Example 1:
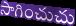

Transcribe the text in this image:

సాగించుచు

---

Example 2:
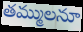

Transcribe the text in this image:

తమ్ములనూ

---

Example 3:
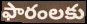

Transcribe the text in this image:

ఫారంలకు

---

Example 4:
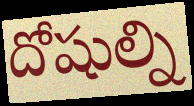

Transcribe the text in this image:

దోషుల్ని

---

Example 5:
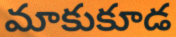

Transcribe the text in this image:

మాకుకూడ